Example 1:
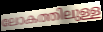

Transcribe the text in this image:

ലോകത്തിലുള്ള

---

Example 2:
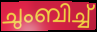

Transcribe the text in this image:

ചുംബിച്ച്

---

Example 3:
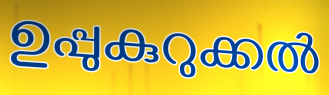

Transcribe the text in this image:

ഉപ്പുകുറുക്കൽ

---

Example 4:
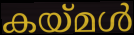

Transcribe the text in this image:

കയ്മൾ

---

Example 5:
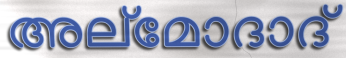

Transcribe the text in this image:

അല്മോദാദ്